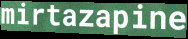
mirtazapine